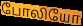
போலியோ